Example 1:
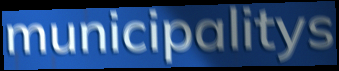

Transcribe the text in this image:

municipalitys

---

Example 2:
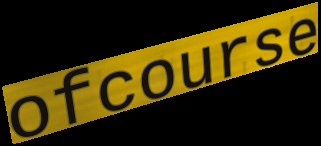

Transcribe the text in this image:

ofcourse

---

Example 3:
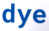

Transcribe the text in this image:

dye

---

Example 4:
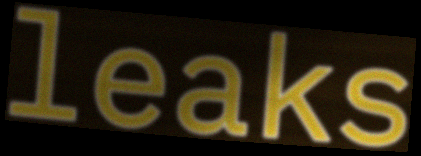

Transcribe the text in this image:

leaks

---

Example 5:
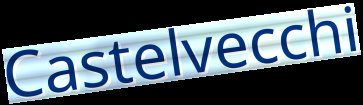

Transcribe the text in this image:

Castelvecchi